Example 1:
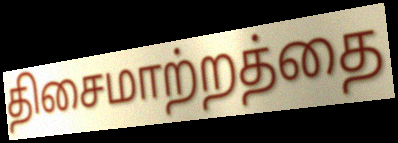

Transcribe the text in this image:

திசைமாற்றத்தை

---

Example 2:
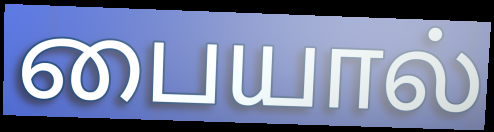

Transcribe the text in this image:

பையால்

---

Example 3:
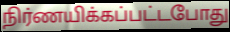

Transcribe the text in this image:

நிர்ணயிக்கப்பட்டபோது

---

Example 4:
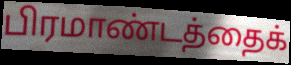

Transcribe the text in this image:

பிரமாண்டத்தைக்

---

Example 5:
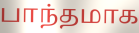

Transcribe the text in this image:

பாந்தமாக